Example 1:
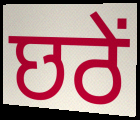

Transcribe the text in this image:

छठें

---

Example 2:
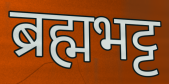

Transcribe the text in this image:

ब्रह्मभट्ट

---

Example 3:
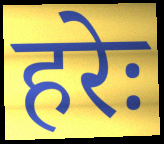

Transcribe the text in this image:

हरेः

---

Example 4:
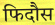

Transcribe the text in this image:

फिदौस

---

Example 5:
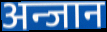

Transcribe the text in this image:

अन्जान